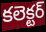
కలెక్టర్